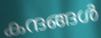
കന്ദങ്ങൾ